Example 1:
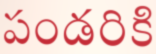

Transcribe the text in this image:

పండరికి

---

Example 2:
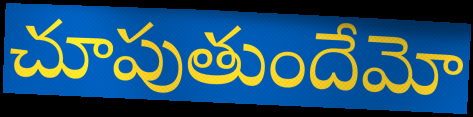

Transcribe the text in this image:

చూపుతుందేమో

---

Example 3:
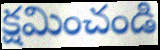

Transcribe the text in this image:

క్షమించండి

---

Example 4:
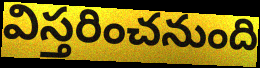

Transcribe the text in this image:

విస్తరించనుంది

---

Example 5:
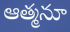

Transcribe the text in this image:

ఆత్మనూ